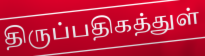
திருப்பதிகத்துள்